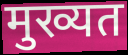
मुख्यत